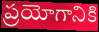
ప్రయోగానికి